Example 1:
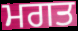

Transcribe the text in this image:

ਮਗਤ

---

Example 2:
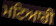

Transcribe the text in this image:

ਮਟਿਆਰੀ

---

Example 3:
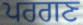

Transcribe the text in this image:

ਪਰਗਣ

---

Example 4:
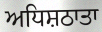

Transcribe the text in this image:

ਅਧਿਸ਼ਠਾਤਾ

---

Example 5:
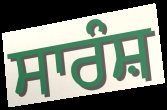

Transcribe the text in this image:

ਸਾਰੰਸ਼